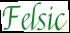
Felsic